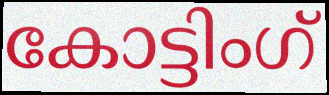
കോട്ടിംഗ്